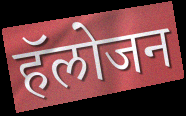
हॅलोजन